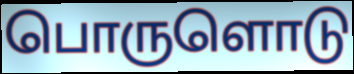
பொருளொடு